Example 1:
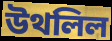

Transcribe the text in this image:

উথলিল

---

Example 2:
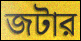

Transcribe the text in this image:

জটার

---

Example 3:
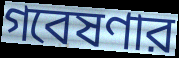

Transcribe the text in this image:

গবেষণার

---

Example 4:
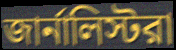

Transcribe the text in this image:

জার্নালিস্টরা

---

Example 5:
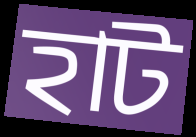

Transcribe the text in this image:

হাট